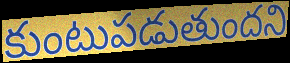
కుంటుపడుతుందని